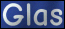
Glas